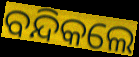
ବନ୍ଦିକଲେ